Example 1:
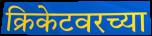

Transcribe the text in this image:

क्रिकेटवरच्या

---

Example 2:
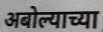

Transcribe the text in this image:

अबोल्याच्या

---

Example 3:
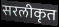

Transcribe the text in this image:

सरलीकृत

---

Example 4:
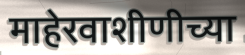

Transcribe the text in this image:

माहेरवाशीणीच्या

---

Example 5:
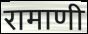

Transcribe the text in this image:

रामाणी